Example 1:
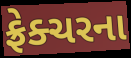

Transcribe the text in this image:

ફ્રેક્ચરના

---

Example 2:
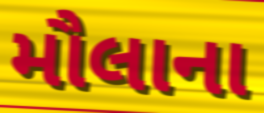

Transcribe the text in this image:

મૌલાના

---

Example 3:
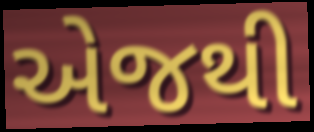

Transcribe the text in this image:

એજથી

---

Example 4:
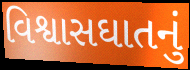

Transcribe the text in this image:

વિશ્વાસઘાતનું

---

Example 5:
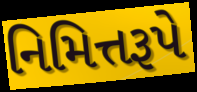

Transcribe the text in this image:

નિમિત્તરૂપે